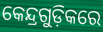
କେନ୍ଦ୍ରଗୁଡ଼ିକରେ